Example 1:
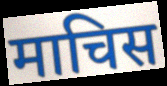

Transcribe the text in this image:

माचिस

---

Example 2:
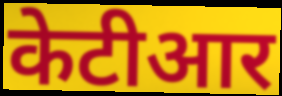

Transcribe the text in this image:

केटीआर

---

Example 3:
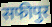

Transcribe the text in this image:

सफीपुर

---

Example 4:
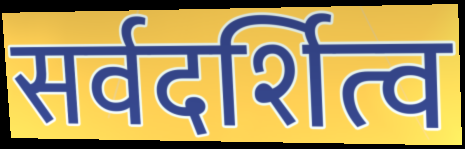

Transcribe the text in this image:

सर्वदर्शित्व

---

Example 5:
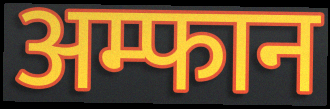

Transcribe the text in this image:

अम्‍फान